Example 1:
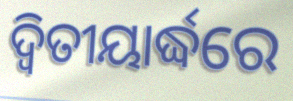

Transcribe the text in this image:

ଦ୍ଵିତୀୟାର୍ଦ୍ଧରେ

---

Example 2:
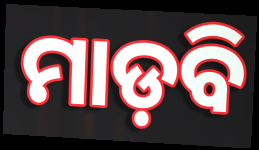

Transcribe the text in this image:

ମାଡ଼ବି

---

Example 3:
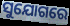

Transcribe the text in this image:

ସୁଯୋଗରେ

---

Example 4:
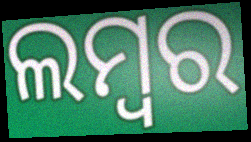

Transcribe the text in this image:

ଲମ୍ବର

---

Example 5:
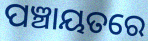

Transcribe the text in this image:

ପଞ୍ଚାୟତରେ